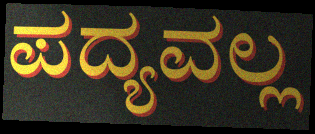
ಪದ್ಯವಲ್ಲ